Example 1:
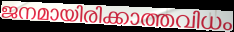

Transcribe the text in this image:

ജനമായിരിക്കാത്തവിധം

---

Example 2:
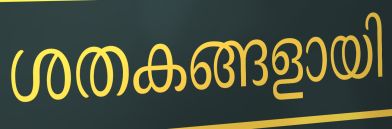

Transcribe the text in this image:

ശതകങ്ങളായി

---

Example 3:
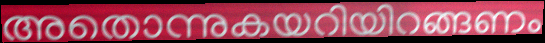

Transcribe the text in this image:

അതൊന്നുകയറിയിറങ്ങണം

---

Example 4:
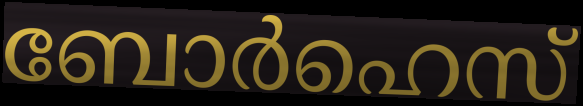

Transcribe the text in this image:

ബോർഹെസ്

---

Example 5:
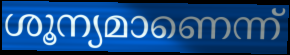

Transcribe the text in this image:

ശൂന്യമാണെന്ന്